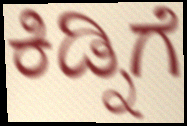
ಕಿಡ್ನಿಗೆ